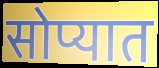
सोप्यात